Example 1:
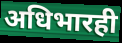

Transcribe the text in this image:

अधिभारही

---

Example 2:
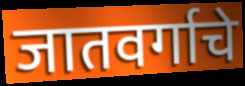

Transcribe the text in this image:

जातवर्गाचे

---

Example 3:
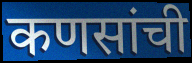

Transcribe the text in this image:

कणसांची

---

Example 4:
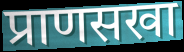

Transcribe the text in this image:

प्राणसखा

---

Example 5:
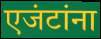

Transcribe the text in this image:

एजंटांना